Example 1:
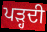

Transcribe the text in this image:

ਪੜ੍ਹਦੀ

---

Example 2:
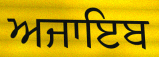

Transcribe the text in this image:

ਅਜਾਇਬ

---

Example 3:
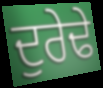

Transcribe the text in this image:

ਦੁਰੇਢੇ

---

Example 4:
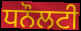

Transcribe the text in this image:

ਧਨੌਲਟੀ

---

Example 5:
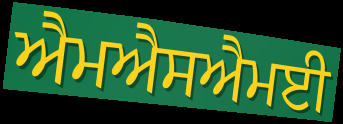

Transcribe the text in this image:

ਐਮਐਸਐਮਈ